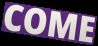
COME